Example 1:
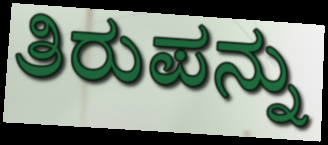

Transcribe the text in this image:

ತಿರುಪನ್ನು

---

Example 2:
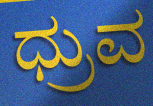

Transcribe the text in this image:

ಧ್ರುವ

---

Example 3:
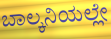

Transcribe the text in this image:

ಬಾಲ್ಕನಿಯಲ್ಲೇ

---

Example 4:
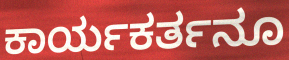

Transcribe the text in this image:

ಕಾರ್ಯಕರ್ತನೂ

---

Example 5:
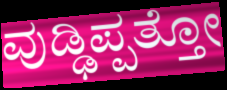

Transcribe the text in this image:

ವುಡ್ಢಿಪ್ಪತ್ತೋ